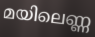
മയിലെണ്ണ